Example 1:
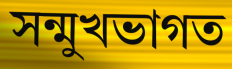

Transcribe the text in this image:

সন্মুখভাগত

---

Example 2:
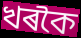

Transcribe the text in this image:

খৰকৈ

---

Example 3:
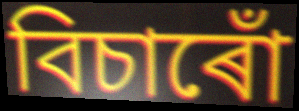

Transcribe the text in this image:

বিচাৰোঁ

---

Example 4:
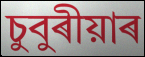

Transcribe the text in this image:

চুবুৰীয়াৰ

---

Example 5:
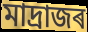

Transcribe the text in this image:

মাদ্ৰাজৰ